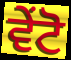
ਵੇਂਟੋ